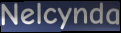
Nelcynda